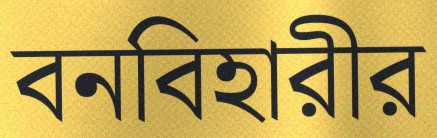
বনবিহারীর